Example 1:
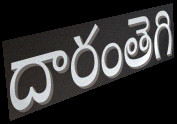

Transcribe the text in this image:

దారంతెగి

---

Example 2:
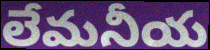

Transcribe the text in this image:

లేమనీయ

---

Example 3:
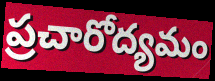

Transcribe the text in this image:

ప్రచారోద్యమం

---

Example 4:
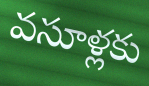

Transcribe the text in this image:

వసూళ్లకు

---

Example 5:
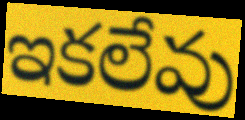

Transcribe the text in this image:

ఇకలేవు